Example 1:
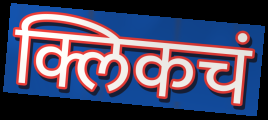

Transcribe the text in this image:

क्लिकचं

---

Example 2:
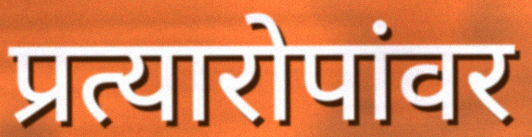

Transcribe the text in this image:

प्रत्यारोपांवर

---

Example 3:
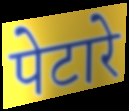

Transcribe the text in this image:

पेटारे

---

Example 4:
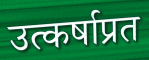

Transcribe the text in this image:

उत्कर्षाप्रत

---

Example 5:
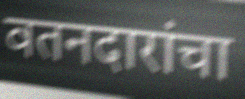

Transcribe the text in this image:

वतनदारांचा